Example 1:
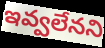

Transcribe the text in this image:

ఇవ్వలేనని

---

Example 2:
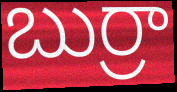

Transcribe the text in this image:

బుర్రా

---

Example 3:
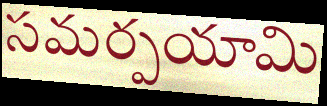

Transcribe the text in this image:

సమర్పయామి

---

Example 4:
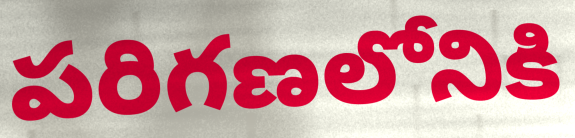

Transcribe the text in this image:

పరిగణలోనికి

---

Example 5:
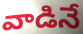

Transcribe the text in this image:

వాడినే